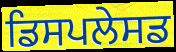
ਡਿਸਪਲੇਸਡ